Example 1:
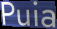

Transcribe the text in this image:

Puia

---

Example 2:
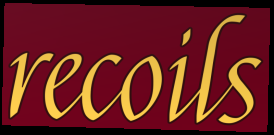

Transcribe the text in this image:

recoils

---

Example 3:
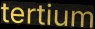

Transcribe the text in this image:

tertium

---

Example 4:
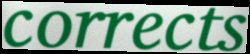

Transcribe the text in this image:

corrects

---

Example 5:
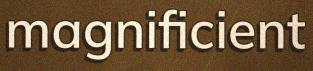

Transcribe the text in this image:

magnificient